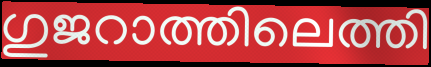
ഗുജറാത്തിലെത്തി